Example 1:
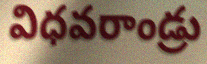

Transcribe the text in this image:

విధవరాండ్రు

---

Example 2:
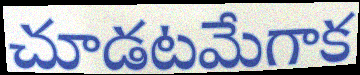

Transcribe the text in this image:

చూడటమేగాక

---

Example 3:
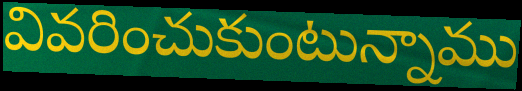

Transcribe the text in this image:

వివరించుకుంటున్నాము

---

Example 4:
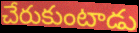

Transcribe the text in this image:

చేరుకుంటాడు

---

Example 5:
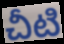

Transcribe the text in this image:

చీటి